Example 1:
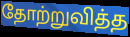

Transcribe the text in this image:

தோற்றுவித்த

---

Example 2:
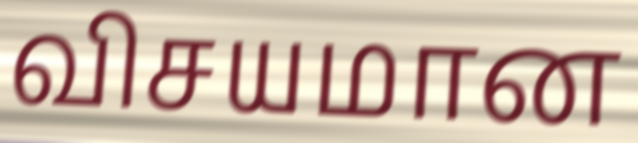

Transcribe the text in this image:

விசயமான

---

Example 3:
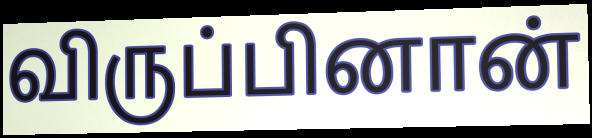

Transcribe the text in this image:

விருப்பினான்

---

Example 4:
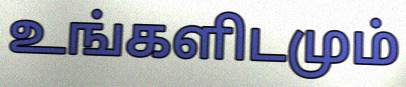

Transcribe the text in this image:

உங்களிடமும்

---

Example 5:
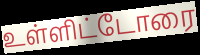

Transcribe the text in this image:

உள்ளிட்டோரை